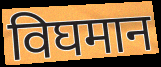
विघमान